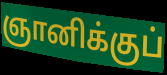
ஞானிக்குப்